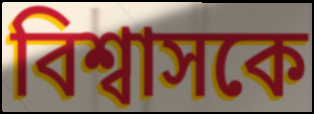
বিশ্বাসকে